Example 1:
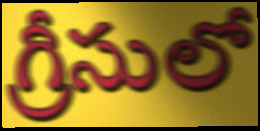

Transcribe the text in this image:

గ్రీసులో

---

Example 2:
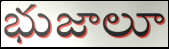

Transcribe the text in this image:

భుజాలూ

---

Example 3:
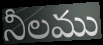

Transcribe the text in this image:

నీలము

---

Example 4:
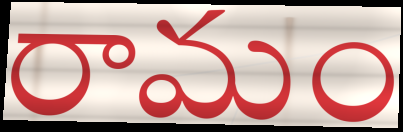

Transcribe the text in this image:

రామం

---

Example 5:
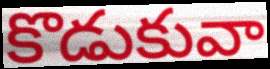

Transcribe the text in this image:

కొడుకువా